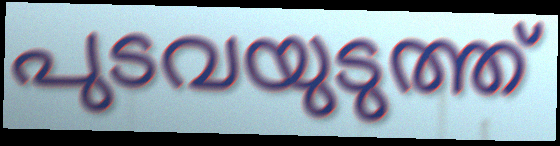
പുടവയുടുത്ത്